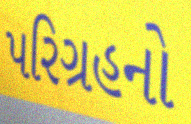
પરિગ્રહનો